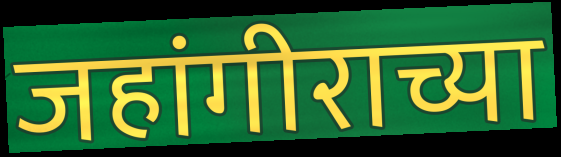
जहांगीराच्या